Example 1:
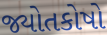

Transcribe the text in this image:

જ્યોતકોષો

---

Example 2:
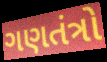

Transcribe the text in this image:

ગણતંત્રો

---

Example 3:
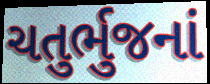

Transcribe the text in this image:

ચતુર્ભુજનાં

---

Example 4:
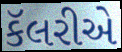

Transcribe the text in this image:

કૅલરીએ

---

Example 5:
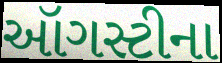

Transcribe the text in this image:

ઑગસ્ટીના